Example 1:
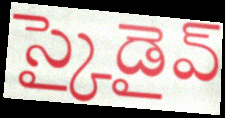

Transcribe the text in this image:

స్కైడైవ్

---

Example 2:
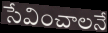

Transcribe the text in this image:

సేవించాలనే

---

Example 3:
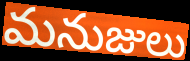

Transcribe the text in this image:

మనుజులు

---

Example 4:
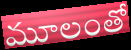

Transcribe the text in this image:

మూలంతో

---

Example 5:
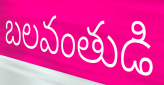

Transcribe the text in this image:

బలవంతుడి